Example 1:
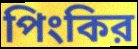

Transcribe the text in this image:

পিংকির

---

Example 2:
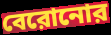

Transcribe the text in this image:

বেরোনোর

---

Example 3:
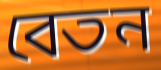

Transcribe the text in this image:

বেতন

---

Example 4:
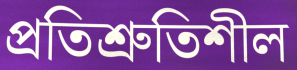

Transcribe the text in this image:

প্রতিশ্রুতিশীল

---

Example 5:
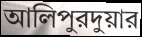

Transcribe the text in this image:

আলিপুরদুয়ার